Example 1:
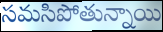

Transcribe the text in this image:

సమసిపోతున్నాయి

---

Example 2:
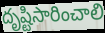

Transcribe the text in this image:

దృష్టిసారించాలి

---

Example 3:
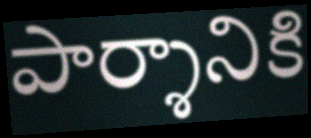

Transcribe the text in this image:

పార్శానికి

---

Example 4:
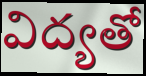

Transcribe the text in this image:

విద్యతో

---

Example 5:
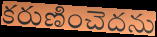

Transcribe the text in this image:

కరుణించెదను